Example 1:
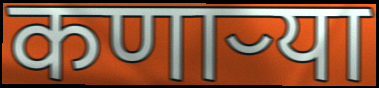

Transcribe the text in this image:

कणाऱ्या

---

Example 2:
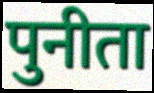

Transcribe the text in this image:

पुनीता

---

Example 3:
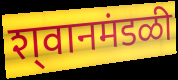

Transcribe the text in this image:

श्वानमंडळी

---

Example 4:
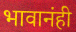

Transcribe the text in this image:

भावानंही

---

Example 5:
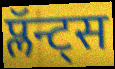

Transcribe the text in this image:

प्लॅन्ट्स